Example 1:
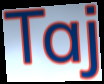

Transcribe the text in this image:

Taj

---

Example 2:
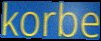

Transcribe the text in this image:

korbe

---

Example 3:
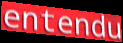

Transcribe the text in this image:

entendu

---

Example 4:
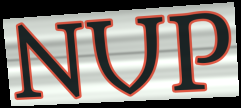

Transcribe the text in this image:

NUP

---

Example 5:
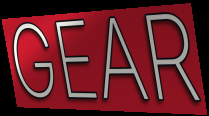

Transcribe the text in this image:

GEAR